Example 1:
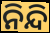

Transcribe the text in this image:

ନିନ୍ଦି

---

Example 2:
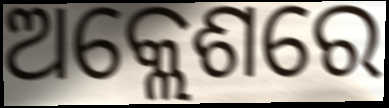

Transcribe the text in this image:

ଅକ୍ଲେଶରେ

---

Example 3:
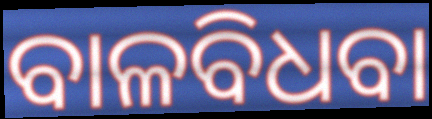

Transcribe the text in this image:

ବାଳବିଧବା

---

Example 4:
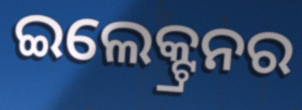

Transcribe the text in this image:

ଇଲେକ୍ଟ୍ରନର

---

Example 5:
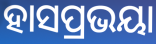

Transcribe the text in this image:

ହାସପ୍ରଭୟା